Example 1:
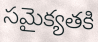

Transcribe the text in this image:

సమైక్యతకి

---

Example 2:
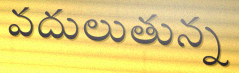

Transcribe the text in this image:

వదులుతున్న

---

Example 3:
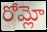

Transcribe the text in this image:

రోమ్లో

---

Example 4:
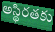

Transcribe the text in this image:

అస్థిరతకు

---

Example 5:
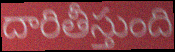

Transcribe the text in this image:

దారితీస్తుంది